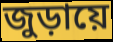
জুড়ায়ে